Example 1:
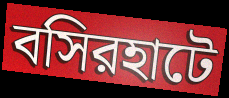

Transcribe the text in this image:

বসিরহাটে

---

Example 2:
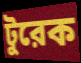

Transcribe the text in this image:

টুরেক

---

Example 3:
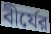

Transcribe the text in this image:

বীর্যের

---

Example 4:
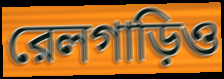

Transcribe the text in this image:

রেলগাড়িও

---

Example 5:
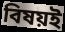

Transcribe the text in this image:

বিষয়ই